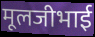
मूलजीभाई